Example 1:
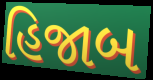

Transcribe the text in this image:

હિજાબ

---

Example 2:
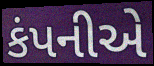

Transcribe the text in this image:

કંપનીએ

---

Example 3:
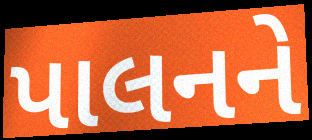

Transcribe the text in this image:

પાલનને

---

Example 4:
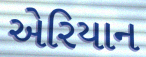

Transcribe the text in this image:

એરિયાન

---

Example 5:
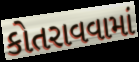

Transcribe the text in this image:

કોતરાવવામાં